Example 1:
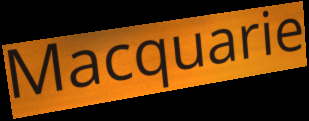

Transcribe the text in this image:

Macquarie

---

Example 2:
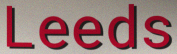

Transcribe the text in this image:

Leeds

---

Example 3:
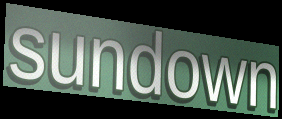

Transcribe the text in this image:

sundown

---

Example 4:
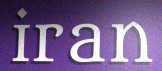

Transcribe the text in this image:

iran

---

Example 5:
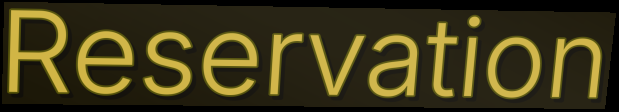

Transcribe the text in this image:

Reservation